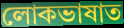
লোকভাষাত